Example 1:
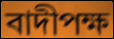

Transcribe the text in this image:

বাদীপক্ষ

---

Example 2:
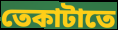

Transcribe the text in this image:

তেকাটাতে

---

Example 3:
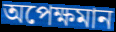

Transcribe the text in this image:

অপেক্ষমান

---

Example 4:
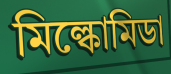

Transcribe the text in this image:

মিল্কোমিডা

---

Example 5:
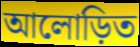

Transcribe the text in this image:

আলোড়িত